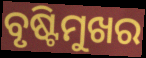
ବୃଷ୍ଟିମୁଖର